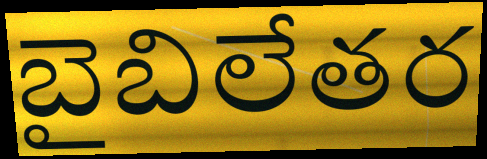
బైబిలేతర